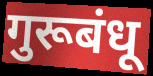
गुरूबंधू